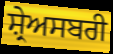
ਸ਼੍ਰੇਅਸਬਰੀ